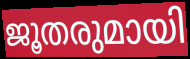
ജൂതരുമായി